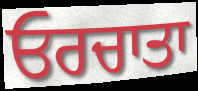
ਓਰਚਾਤਾ